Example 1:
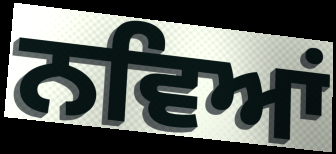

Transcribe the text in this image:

ਨਵਿਆਂ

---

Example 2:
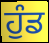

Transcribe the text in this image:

ਹੁੰਡ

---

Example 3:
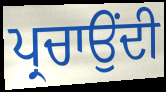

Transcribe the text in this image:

ਪ੍ਰਚਾਉਂਦੀ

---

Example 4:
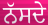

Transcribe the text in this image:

ਨੱਸਦੇ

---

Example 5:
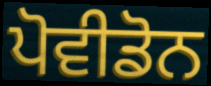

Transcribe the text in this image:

ਪੋਵੀਡੋਨ